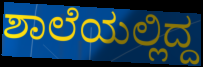
ಶಾಲೆಯಲ್ಲಿದ್ದ